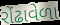
રોંઢાવેળા